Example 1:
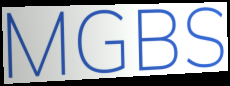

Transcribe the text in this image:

MGBS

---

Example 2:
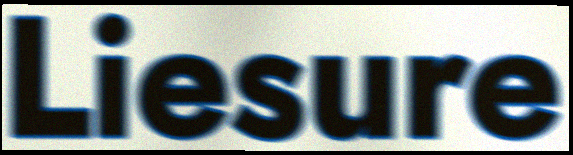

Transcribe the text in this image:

Liesure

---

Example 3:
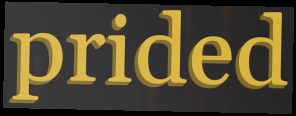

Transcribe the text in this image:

prided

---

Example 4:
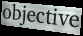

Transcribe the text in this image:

objective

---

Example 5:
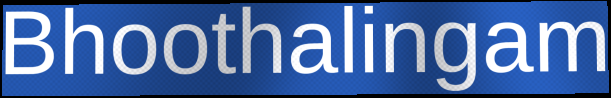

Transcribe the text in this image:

Bhoothalingam